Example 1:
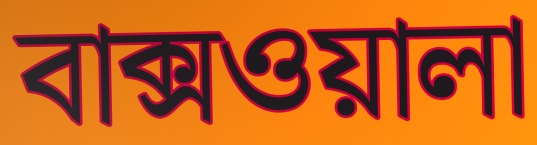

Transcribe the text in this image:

বাক্সওয়ালা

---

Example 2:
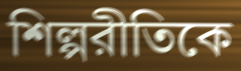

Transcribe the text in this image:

শিল্পরীতিকে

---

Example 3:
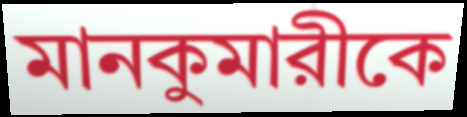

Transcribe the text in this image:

মানকুমারীকে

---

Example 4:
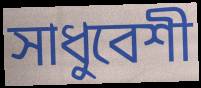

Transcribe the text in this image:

সাধুবেশী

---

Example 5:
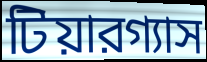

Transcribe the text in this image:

টিয়ারগ্যাস